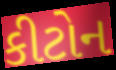
કીટોન